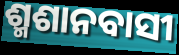
ଶ୍ମଶାନବାସୀ